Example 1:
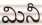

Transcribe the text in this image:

మినీ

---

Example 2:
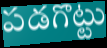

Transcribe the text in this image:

పడగొట్టు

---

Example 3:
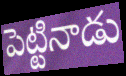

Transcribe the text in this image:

పెట్టినాడు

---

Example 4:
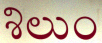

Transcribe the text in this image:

శిలుం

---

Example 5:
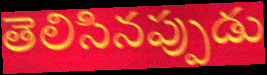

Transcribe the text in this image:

తెలిసినప్పుడు